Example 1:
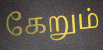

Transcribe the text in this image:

கேறும்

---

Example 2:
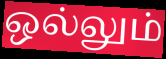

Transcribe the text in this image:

ஒல்லும்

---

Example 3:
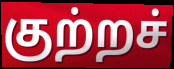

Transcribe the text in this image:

குற்றச்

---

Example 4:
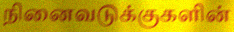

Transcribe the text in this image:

நினைவடுக்குகளின்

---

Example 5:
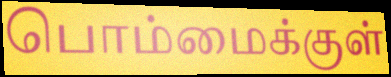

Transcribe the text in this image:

பொம்மைக்குள்